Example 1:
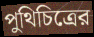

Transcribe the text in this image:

পুথিচিত্রের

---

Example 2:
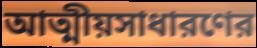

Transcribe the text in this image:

আত্মীয়সাধারণের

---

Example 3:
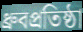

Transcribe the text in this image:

ধ্রুবপ্রতিষ্ঠা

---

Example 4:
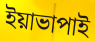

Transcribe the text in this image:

ইয়াভাপাই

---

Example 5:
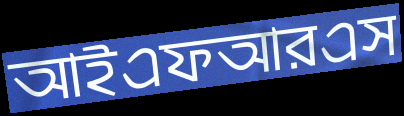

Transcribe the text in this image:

আইএফআরএস